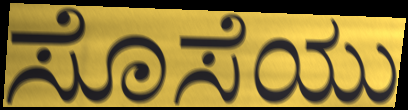
ಸೊಸೆಯು